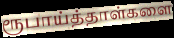
ரூபாய்த்தாள்களை